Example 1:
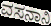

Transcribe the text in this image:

ವಸನಾನಿ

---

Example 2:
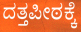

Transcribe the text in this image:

ದತ್ತಪೀಠಕ್ಕೆ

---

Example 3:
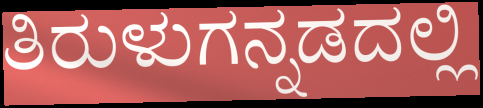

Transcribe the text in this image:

ತಿರುಳುಗನ್ನಡದಲ್ಲಿ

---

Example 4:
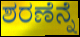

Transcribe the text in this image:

ಶರಣೆನ್ನೆ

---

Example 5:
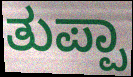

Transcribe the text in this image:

ತುಪ್ಪಾ